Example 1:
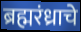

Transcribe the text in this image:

ब्रह्मरंध्राचे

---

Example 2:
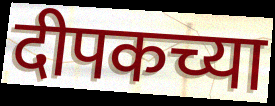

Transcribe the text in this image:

दीपकच्या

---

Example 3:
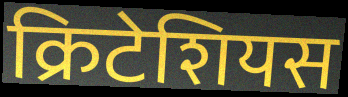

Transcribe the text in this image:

क्रिटेशियस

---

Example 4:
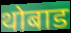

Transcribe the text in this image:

थोबाड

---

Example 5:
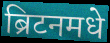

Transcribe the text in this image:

ब्रिटनमधे